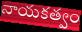
నాయకత్వం